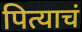
पित्याचं